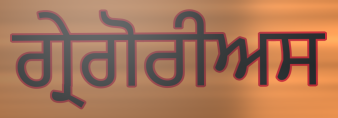
ਗ੍ਰੇਗੋਰੀਅਸ